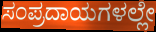
ಸಂಪ್ರದಾಯಗಳಲ್ಲೇ